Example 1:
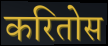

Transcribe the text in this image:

करितोस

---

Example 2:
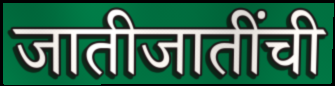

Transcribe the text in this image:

जातीजातींची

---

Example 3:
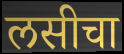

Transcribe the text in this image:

लसीचा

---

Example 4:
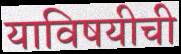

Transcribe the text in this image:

याविषयीची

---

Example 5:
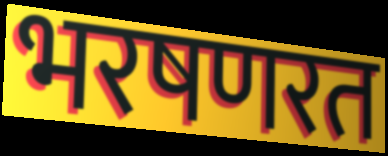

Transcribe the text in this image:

भरषणरत